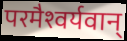
परमैश्वर्यवान्